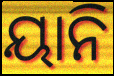
ୟାନି